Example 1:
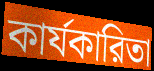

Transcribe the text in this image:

কার্যকারিতা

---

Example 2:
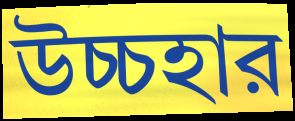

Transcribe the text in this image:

উচ্চহার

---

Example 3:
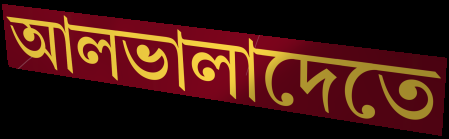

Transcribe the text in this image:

আলভালাদেতে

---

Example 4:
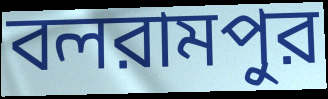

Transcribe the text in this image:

বলরামপুর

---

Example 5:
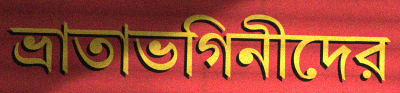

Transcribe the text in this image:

ভ্রাতাভগিনীদের